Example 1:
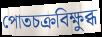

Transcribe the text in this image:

পোতচক্রবিক্ষুব্ধ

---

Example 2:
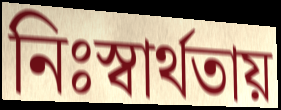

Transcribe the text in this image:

নিঃস্বার্থতায়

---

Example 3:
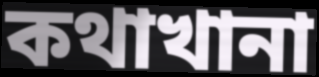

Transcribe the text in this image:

কথাখানা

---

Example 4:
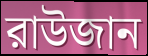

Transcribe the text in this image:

রাউজান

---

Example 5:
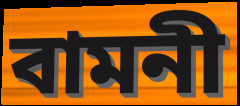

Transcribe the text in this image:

বামনী